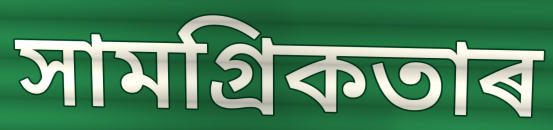
সামগ্ৰিকতাৰ